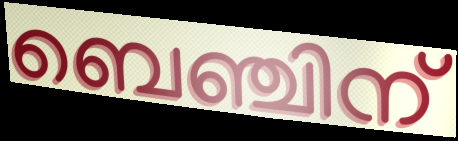
ബെഞ്ചിന്